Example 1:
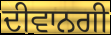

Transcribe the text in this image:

ਦੀਵਾਨਗੀ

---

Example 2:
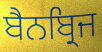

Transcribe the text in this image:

ਬੈਨਬ੍ਰਿਜ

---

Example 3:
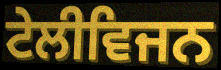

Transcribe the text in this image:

ਟੇਲੀਵਿਜਨ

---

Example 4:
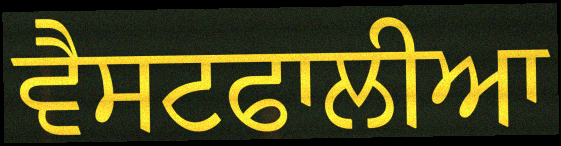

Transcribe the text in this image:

ਵੈਸਟਫਾਲੀਆ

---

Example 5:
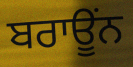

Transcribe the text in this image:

ਬਰਾਊਂਨ